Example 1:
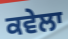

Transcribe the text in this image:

ਕਵੇਲਾ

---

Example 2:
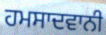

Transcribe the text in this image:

ਹਮਸਾਦਵਾਨੀ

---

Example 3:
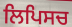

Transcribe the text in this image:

ਲਿਪਿਸਚ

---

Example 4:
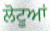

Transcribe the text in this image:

ਲੋਟੂਆਂ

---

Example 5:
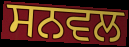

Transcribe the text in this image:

ਸਨਵਲ